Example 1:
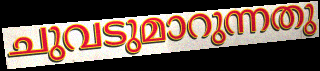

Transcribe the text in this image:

ചുവടുമാറുന്നതു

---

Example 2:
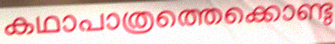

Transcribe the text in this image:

കഥാപാത്രത്തെക്കൊണ്ടു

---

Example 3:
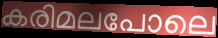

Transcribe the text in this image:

കരിമലപോലെ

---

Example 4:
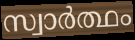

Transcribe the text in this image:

സ്വാർത്ഥം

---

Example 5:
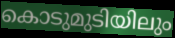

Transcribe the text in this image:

കൊടുമുടിയിലും